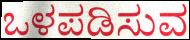
ಒಳಪಡಿಸುವ